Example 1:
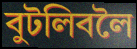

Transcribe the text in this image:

বুটলিবলৈ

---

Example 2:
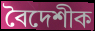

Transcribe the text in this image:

বৈদেশীক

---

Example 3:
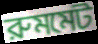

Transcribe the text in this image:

ৰুমমেট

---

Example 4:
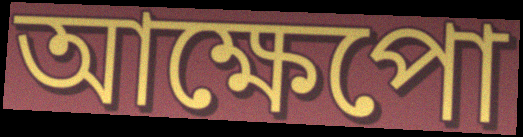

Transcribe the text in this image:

আক্ষেপো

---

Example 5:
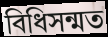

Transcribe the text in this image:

বিধিসন্মত